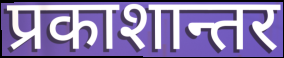
प्रकाशान्तर